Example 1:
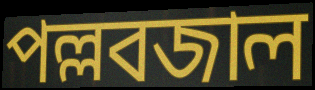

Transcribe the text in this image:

পল্লবজাল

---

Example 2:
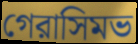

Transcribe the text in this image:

গেরাসিমভ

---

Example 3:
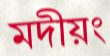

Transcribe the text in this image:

মদীয়ং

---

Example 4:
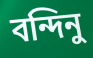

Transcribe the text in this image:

বন্দিনু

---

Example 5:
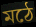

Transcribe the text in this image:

মঠে